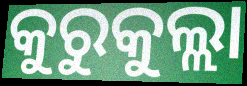
କୁରୁକୁଲ୍ଲା